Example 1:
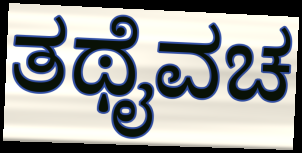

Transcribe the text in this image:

ತಥೈವಚ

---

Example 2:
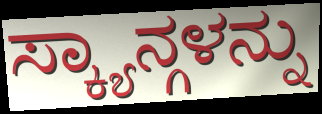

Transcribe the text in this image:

ಸ್ಕ್ಯಾನ್ಗಳನ್ನು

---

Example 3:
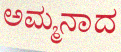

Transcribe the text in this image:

ಅಮ್ಮನಾದ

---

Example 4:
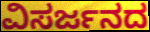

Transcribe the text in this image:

ವಿಸರ್ಜನದ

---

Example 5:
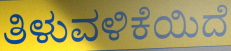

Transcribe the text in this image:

ತಿಳುವಳಿಕೆಯಿದೆ